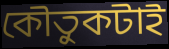
কৌতুকটাই